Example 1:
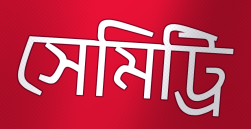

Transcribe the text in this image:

সেমিট্রি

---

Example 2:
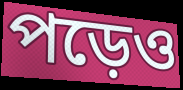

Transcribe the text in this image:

পড়েও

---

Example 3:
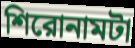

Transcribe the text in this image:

শিরোনামটা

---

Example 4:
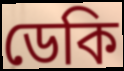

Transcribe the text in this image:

ডেকি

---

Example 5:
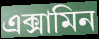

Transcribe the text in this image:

এক্সামিন